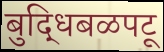
बुद्धिबळपटू